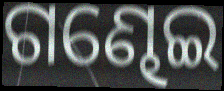
ଗଣ୍ଢେଇ